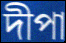
দীপা